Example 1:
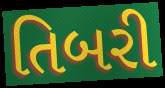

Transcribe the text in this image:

તિબરી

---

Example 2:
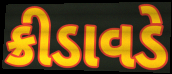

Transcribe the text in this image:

ક્રીડાવડે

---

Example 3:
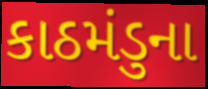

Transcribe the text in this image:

કાઠમંડુના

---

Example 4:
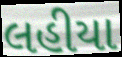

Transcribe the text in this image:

લહીયા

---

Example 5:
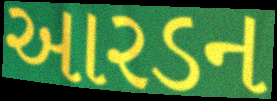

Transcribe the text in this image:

આરડન